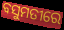
ବସୁମତୀରେ